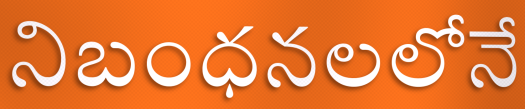
నిబంధనలలోనే